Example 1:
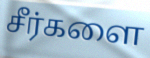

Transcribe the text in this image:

சீர்களை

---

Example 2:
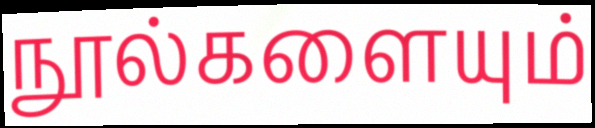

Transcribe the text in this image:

நூல்களையும்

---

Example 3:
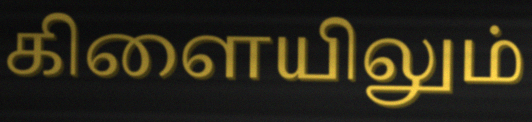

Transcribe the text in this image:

கிளையிலும்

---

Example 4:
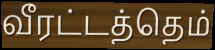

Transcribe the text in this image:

வீரட்டத்தெம்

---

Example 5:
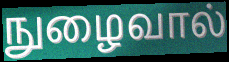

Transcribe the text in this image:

நுழைவால்